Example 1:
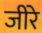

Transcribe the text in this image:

जीरे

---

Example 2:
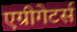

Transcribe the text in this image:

एग्रीगेटर्स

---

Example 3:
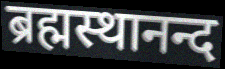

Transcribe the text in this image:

ब्रह्मस्थानन्द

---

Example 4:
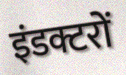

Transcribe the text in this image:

इंडक्टरों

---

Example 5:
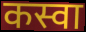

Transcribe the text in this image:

कस्वा